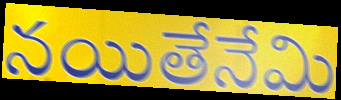
నయితేనేమి